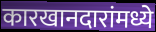
कारखानदारांमध्ये